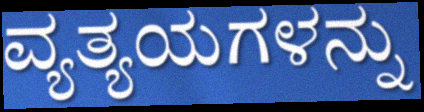
ವ್ಯತ್ಯಯಗಳನ್ನು